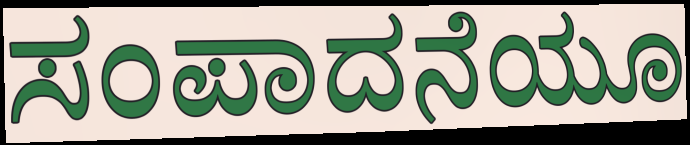
ಸಂಪಾದನೆಯೂ